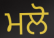
ਮਲੋ